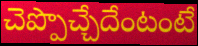
చెప్పొచ్చేదేంటంటే